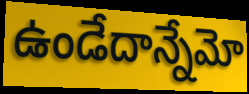
ఉండేదాన్నేమో